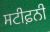
ਸਟੀਫ਼ਨੀ